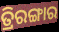
ତ୍ରିରଙ୍ଗାର